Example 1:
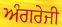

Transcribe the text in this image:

ਅੰਗਰੇਜੀ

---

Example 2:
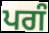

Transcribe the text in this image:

ਪਗੰ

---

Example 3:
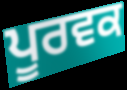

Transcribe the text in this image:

ਪੂਰਵਕ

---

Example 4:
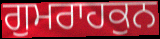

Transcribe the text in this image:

ਗੁਮਰਾਹਕੁਨ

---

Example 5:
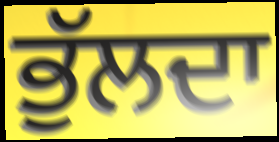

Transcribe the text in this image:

ਭੁੱਲਦਾ